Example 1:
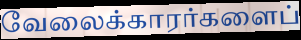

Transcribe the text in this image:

வேலைக்காரர்களைப்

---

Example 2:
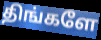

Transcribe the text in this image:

திங்களே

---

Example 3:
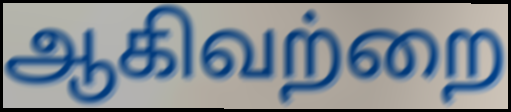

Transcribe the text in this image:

ஆகிவற்றை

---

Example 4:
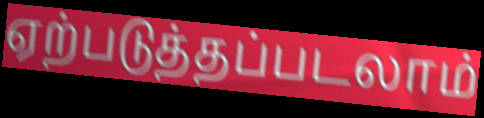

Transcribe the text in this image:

ஏற்படுத்தப்படலாம்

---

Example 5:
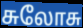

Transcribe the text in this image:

சுலோசு